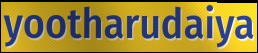
yootharudaiya